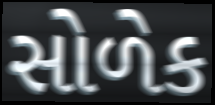
સોળેક